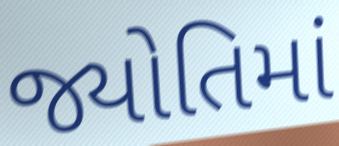
જ્યોતિમાં